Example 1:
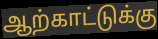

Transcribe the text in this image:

ஆற்காட்டுக்கு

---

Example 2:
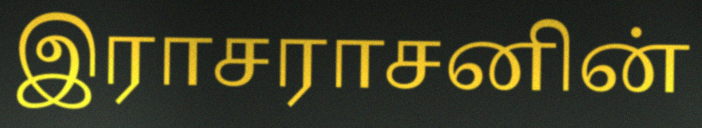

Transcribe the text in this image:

இராசராசனின்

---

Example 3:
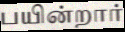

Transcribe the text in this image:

பயின்றார்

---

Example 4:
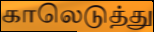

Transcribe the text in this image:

காலெடுத்து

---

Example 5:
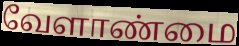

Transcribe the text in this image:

வேளாண்மை